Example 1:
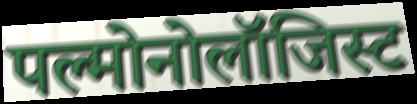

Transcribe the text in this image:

पल्मोनोलॉजिस्ट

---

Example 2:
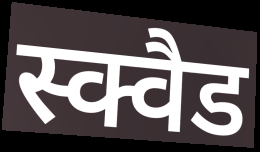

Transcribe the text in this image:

स्क्वैड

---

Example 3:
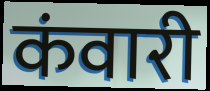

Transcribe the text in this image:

कंवारी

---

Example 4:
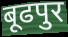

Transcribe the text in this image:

बूढपुर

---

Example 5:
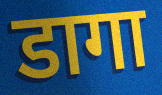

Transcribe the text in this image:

डागा